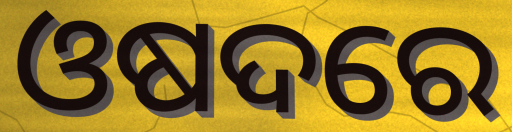
ଓଷଦରେ